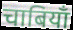
चाबियाँ